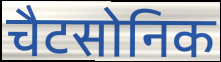
चैटसोनिक